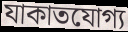
যাকাতযোগ্য